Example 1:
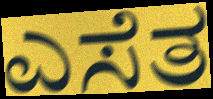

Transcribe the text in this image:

ಎಸೆತ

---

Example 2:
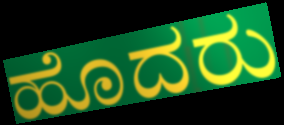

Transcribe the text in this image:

ಹೊದರು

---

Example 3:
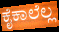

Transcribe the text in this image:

ಕೈಕಾಲೆಲ್ಲ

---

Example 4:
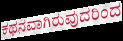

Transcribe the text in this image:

ಕಥನವಾಗಿರುವುದರಿಂದ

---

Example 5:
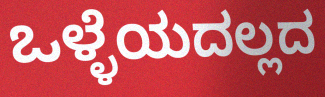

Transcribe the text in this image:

ಒಳ್ಳೆಯದಲ್ಲದ